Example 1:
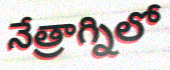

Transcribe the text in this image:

నేత్రాగ్నిలో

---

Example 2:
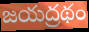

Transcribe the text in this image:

జయద్రథం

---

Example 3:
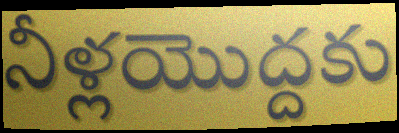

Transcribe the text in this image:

నీళ్లయొద్దకు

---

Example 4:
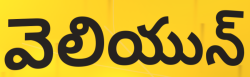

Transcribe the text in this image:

వెలియున్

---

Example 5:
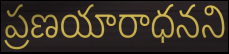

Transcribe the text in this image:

ప్రణయారాధనని